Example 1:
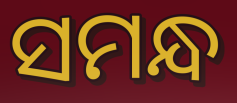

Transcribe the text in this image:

ସମନ୍ଧ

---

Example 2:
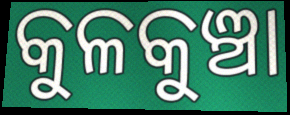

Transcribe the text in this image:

କୁଳକୁଞ୍ଚା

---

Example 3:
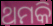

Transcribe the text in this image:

ଥମକି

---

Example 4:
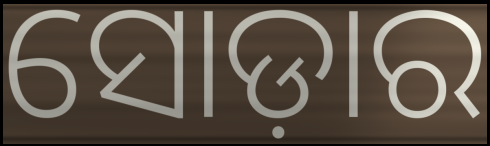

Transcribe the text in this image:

ସୋଡ଼ାର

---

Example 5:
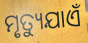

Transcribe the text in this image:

ମୃତ୍ୟୁଯାଏଁ